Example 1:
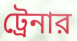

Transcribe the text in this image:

ট্রেনার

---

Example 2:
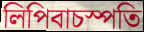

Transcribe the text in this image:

লিপিবাচস্পতি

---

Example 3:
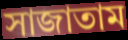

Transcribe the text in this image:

সাজাতাম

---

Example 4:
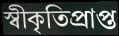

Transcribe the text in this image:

স্বীকৃতিপ্রাপ্ত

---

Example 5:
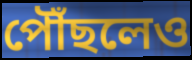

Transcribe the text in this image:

পৌঁছলেও